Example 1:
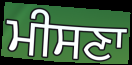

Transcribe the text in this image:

ਮੀਸਣਾ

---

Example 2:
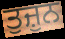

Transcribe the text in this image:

ਤੁਜ਼ੁਨ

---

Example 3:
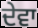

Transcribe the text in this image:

ਦੇਵਾ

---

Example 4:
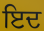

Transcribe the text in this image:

ਇਦ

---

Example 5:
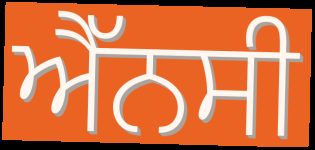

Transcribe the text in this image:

ਐੱਨਸੀ